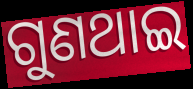
ଗୁଣଥାଇ